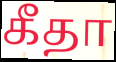
கீதா